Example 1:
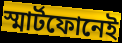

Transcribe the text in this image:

স্মার্টফোনেই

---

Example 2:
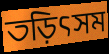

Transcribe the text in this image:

তড়িৎসম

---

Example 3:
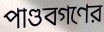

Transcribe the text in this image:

পাণ্ডবগণের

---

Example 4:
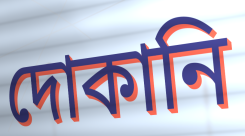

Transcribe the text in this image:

দোকানি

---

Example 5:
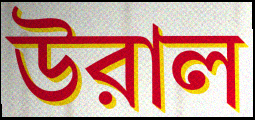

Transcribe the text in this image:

উরাল